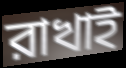
রাখাই